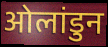
ओलांडुन